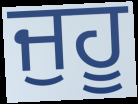
ਜੁਹੂ